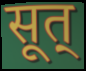
सूत्